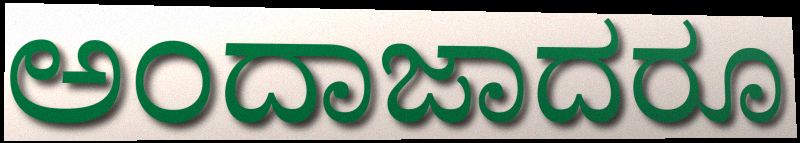
ಅಂದಾಜಾದರೂ